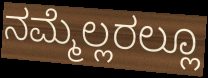
ನಮ್ಮೆಲ್ಲರಲ್ಲೂ